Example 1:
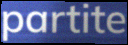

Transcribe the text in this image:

partite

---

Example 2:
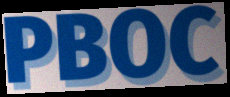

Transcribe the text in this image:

PBOC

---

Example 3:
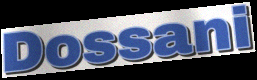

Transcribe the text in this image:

Dossani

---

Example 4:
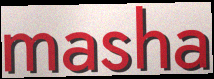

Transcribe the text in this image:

masha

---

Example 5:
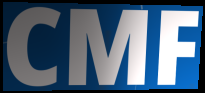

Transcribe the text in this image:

CMF